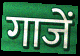
गाजें